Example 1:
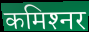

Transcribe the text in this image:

कमिश्‍नर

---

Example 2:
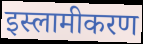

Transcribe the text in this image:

इस्लामीकरण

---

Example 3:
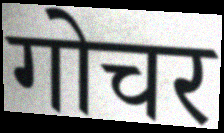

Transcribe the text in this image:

गोचर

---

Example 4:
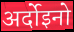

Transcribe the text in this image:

अर्दोइनो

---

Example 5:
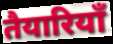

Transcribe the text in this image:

तैयारियॉं